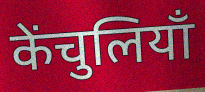
केंचुलियाँ